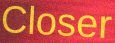
Closer